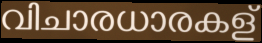
വിചാരധാരകള്